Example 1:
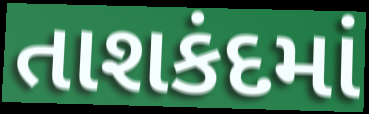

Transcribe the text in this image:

તાશકંદમાં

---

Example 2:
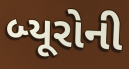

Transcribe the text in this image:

બ્યૂરોની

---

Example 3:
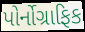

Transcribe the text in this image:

પોર્નોગ્રાફિક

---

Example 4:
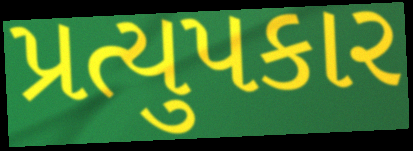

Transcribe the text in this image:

પ્રત્યુપકાર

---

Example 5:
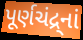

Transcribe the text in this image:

પૂર્ણચંદ્ર્નાં